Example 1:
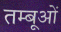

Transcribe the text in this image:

तम्बूओं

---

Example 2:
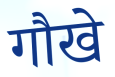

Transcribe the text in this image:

गौखे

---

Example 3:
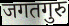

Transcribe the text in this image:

जगतगुरु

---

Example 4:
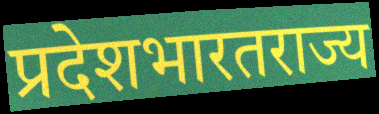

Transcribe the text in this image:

प्रदेशभारतराज्य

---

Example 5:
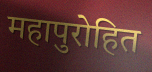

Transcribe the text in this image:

महापुरोहित